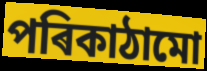
পৰিকাঠামো